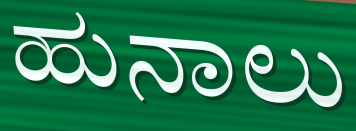
ಹುನಾಲು